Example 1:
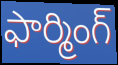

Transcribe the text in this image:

ఫార్మింగ్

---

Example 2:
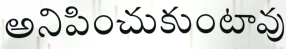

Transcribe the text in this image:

అనిపించుకుంటావు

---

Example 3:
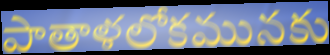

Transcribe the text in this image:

పాతాళలోకమునకు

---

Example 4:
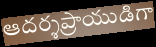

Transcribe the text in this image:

ఆదర్శప్రాయుడిగా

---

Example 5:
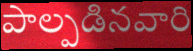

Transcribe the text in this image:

పాల్పడినవారి